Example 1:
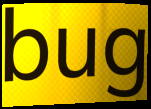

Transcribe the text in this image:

bug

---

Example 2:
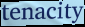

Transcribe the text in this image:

tenacity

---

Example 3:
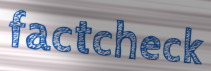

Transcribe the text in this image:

factcheck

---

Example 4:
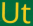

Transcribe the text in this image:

Ut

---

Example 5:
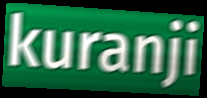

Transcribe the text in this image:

kuranji